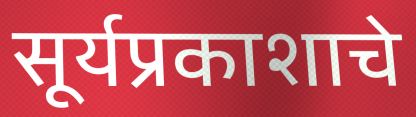
सूर्यप्रकाशाचे